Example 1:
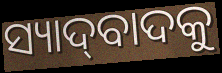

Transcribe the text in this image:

ସ୍ୟାଦ୍‌ବାଦକୁ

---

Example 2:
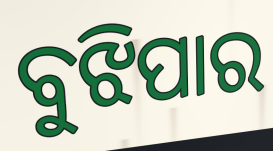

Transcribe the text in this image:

ବୁଝିପାର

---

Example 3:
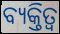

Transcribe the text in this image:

ବ୍ୟକ୍ତିତ୍ଵ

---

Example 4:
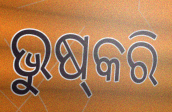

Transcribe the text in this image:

ଭୁଷ୍‌କରି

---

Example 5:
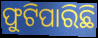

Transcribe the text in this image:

ଫୁଟିପାରିଛି